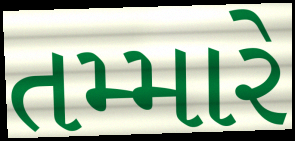
તમ્મારે